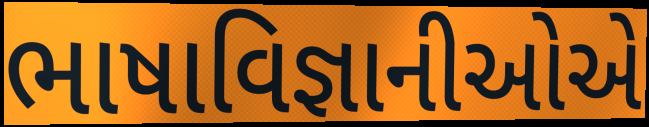
ભાષાવિજ્ઞાનીઓએ